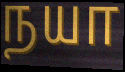
நயா